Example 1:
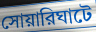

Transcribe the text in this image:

সোয়ারিঘাটে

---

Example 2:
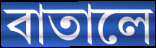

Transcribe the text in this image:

বাতালে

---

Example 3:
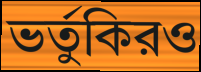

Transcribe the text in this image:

ভর্তুকিরও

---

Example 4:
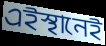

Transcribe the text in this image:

এইস্থানেই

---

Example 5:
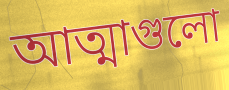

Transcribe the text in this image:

আত্মাগুলো